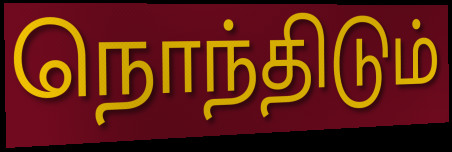
நொந்திடும்